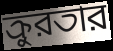
ক্রুরতার